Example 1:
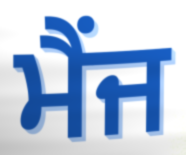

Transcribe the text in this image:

ਮੈਂਜ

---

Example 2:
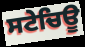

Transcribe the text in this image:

ਸਟੇਚਿਊ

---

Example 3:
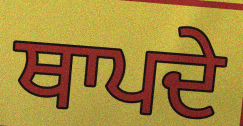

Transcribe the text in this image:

ਥਾਪਦੇ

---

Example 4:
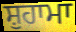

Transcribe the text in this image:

ਸ਼ੁਹਾਮਾ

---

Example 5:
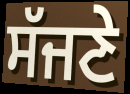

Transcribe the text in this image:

ਸੱਜਣੇ